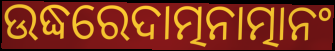
ଉଦ୍ଧରେଦାତ୍ମନାତ୍ମାନଂ